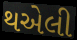
થએલી